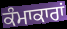
ਕੰਮਾਕਾਰਾਂ